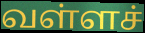
வள்ளச்